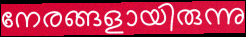
നേരങ്ങളായിരുന്നു